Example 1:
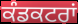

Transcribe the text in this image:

ਕੰਡਕਟਰਾਂ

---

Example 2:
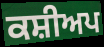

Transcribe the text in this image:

ਕਸ਼ੀਅਪ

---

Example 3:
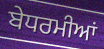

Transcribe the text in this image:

ਬੇਧਰਮੀਆਂ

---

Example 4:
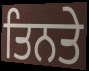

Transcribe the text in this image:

ਤਿਨਤੇ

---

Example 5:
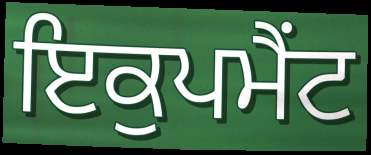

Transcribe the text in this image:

ਇਕੁਪਮੈਂਟ